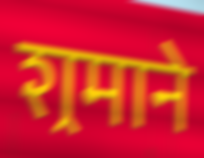
श्रमाने